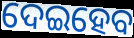
ଦେଇହେବ